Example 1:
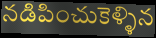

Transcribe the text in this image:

నడిపించుకెళ్ళిన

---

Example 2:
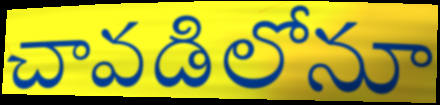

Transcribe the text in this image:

చావడిలోనూ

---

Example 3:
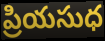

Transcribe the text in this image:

ప్రియసుధ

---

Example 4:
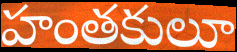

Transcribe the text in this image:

హంతకులూ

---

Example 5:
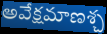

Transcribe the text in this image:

అవేక్షమాణశ్చ